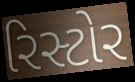
રિસ્ટોર